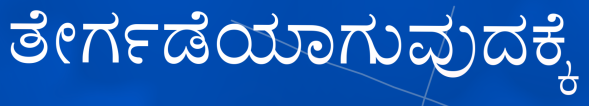
ತೇರ್ಗಡೆಯಾಗುವುದಕ್ಕೆ